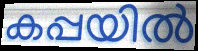
കപ്പയിൽ